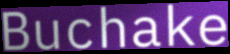
Buchake